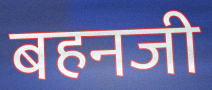
बहनजी